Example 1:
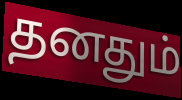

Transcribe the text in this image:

தனதும்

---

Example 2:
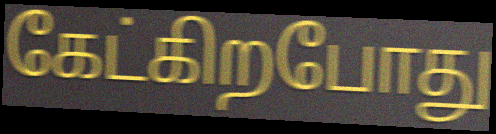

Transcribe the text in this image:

கேட்கிறபோது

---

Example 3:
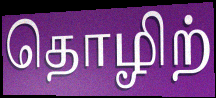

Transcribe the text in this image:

தொழிற்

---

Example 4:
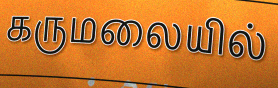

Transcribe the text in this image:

கருமலையில்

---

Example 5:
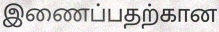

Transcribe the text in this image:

இணைப்பதற்கான